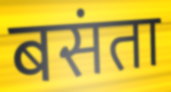
बसंता